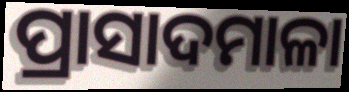
ପ୍ରାସାଦମାଳା